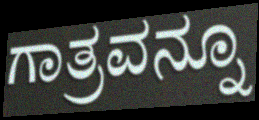
ಗಾತ್ರವನ್ನೂ